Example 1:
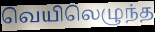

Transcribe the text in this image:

வெயிலெழுந்த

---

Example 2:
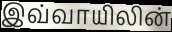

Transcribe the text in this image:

இவ்வாயிலின்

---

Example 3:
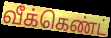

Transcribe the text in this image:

வீக்கெண்ட்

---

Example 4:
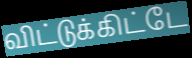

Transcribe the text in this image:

விட்டுக்கிட்டே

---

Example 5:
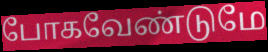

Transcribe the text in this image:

போகவேண்டுமே